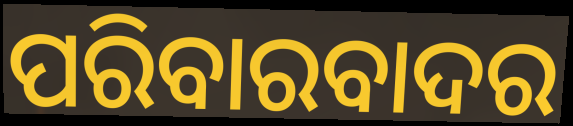
ପରିବାରବାଦର